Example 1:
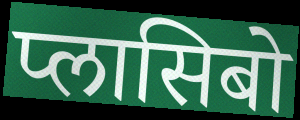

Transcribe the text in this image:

प्लासिबो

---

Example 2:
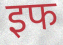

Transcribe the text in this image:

इफ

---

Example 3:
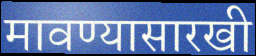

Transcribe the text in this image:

मावण्यासारखी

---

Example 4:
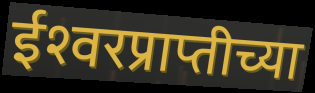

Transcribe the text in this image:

ईश्वरप्राप्तीच्या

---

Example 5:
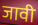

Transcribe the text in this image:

जावी